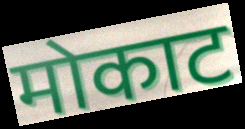
मोकाट